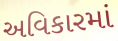
અવિકારમાં